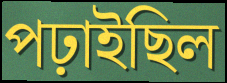
পঢ়াইছিল